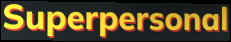
Superpersonal